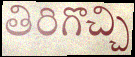
తిరిగొచ్చి